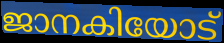
ജാനകിയോട്